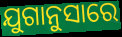
ଯୁଗାନୁସାରେ